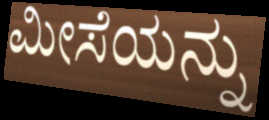
ಮೀಸೆಯನ್ನು